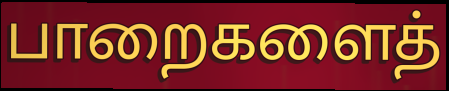
பாறைகளைத்